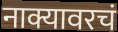
नाक्यावरचं